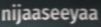
nijaaseeyaa